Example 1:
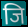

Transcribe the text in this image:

जि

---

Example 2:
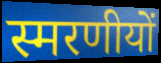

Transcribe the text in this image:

स्मरणीयों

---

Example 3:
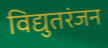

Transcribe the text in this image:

विद्युतरंजन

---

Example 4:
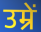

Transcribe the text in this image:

उम्रें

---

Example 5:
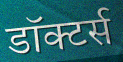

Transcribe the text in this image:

डॉक्टर्स